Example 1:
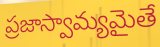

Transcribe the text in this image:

ప్రజాస్వామ్యమైతే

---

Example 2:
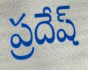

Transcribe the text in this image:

ప్రదేష్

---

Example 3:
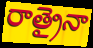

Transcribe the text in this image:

రాత్రైనా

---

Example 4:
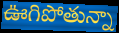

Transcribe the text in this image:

ఊగిపోతున్నా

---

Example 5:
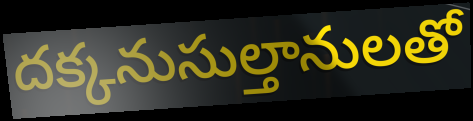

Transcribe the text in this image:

దక్కనుసుల్తానులతో